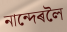
নান্দেৰলৈ